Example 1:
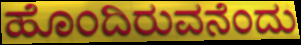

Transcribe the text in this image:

ಹೊಂದಿರುವನೆಂದು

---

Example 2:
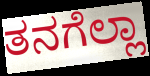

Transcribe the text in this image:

ತನಗೆಲ್ಲಾ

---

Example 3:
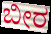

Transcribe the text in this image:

ಬೀರ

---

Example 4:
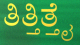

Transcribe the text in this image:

ತಿತ್ತಿತ್ತೈ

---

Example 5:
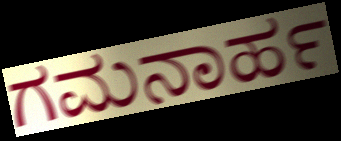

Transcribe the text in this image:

ಗಮನಾರ್ಹ